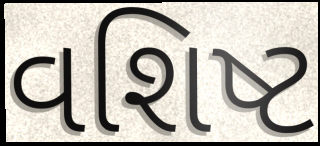
વશિષ્ટ